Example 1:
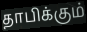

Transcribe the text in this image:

தாபிக்கும்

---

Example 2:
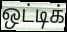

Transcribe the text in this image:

ஒட்டிக்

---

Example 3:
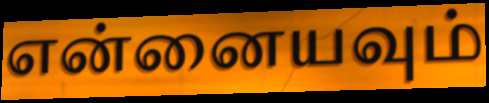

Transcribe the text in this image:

என்னையவும்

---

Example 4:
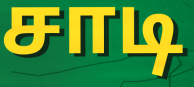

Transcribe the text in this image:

சாடி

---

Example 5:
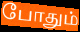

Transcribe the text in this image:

போதும்